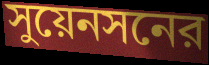
সুয়েনসনের